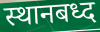
स्थानबध्द